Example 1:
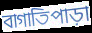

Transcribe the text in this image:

বাগাতিপাড়া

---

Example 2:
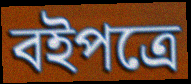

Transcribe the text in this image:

বইপত্রে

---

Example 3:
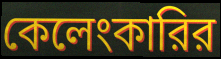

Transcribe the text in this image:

কেলেংকারির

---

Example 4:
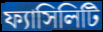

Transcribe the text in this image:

ফ্যাসিলিটি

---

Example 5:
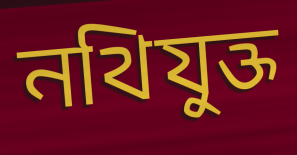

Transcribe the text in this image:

নথিযুক্ত